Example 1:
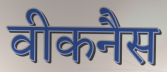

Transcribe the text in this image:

वीकनैस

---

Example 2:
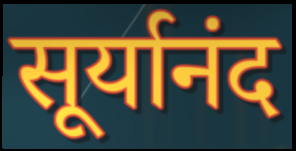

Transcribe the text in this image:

सूर्यानंद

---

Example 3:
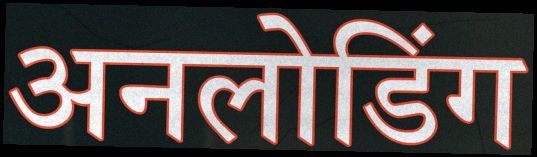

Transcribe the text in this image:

अनलोडिंग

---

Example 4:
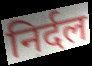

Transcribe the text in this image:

निर्दल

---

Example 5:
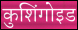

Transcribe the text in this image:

कुशिंगोइड